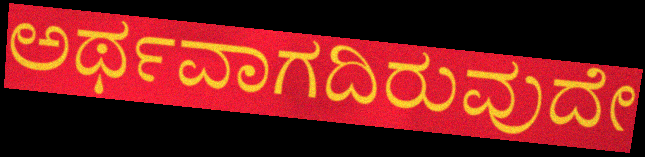
ಅರ್ಥವಾಗದಿರುವುದೇ